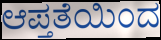
ಆಪ್ತತೆಯಿಂದ